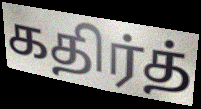
கதிர்த்